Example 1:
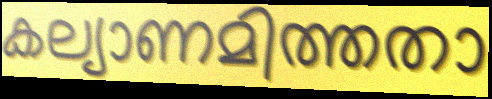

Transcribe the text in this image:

കല്യാണമിത്തതാ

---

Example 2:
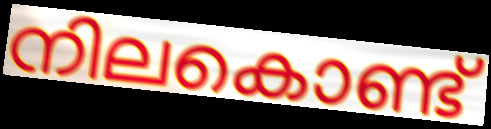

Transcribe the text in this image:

നിലകൊണ്ട്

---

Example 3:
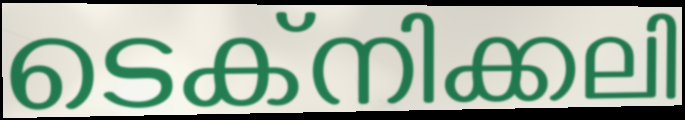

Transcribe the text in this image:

ടെക്‌നിക്കലി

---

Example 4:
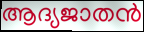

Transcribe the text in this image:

ആദ്യജാതൻ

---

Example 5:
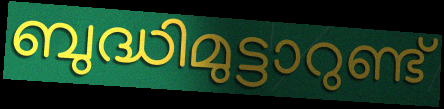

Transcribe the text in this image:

ബുദ്ധിമുട്ടാറുണ്ട്